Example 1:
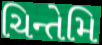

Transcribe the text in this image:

ચિન્તેમિ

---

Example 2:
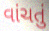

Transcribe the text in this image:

વાંચતું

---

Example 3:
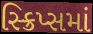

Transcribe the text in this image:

સ્ક્રિપ્સમાં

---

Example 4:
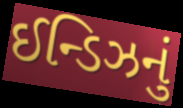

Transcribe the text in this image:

ઈન્ડિઝનું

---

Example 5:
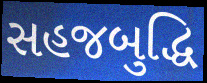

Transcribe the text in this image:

સહજબુદ્ધિ